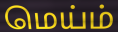
மெய்ம்